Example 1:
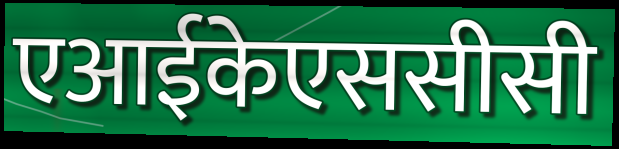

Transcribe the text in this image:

एआईकेएससीसी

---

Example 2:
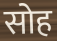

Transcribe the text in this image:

सोह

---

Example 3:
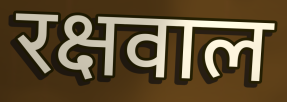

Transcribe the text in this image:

रक्षवाल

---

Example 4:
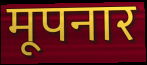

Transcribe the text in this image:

मूपनार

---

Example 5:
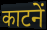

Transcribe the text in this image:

काटनें